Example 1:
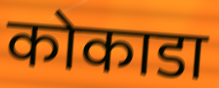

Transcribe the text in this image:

कोकाडा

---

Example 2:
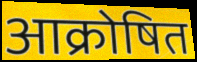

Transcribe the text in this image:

आक्रोषित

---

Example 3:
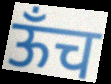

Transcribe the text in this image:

ऊँच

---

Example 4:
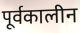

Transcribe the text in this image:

पूर्वकालीन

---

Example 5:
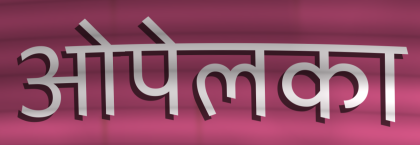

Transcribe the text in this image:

ओपेलका